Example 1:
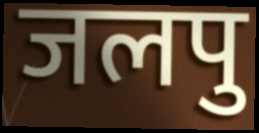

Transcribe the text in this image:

जलपु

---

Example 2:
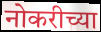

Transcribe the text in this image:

नोकरीच्या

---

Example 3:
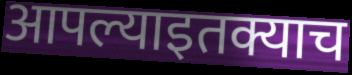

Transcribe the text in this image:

आपल्याइतक्याच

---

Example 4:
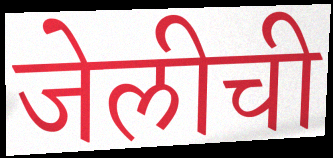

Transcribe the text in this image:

जेलीची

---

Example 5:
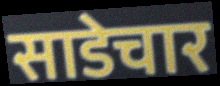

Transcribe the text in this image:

साडेचार